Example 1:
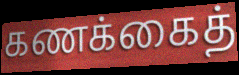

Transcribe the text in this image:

கணக்கைத்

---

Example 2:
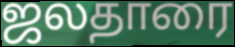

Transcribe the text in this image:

ஜலதாரை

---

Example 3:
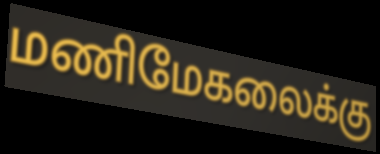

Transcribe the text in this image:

மணிமேகலைக்கு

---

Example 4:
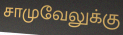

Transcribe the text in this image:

சாமுவேலுக்கு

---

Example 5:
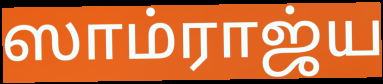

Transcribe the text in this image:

ஸாம்ராஜ்ய